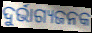
ଦୁର୍ଭାଗ୍ୟଜନକ